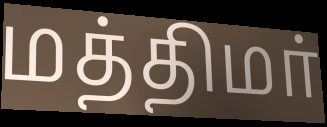
மத்திமர்